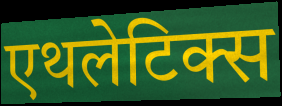
एथलेटिक्‍स